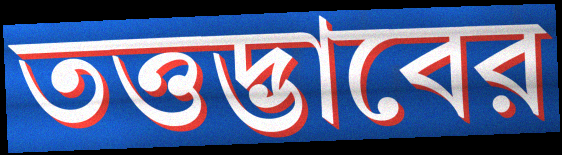
তত্তদ্ভাবের